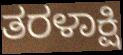
ತರಳಾಕ್ಷಿ